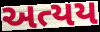
અત્યય